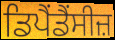
ਡਿਪੈਂਡੈਂਸੀਜ਼